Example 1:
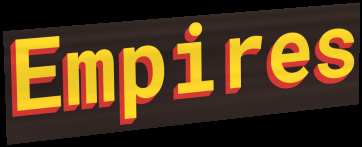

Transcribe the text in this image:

Empires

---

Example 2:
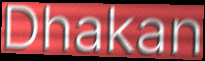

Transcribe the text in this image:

Dhakan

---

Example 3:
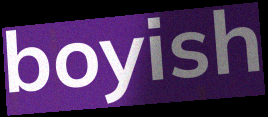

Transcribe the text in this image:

boyish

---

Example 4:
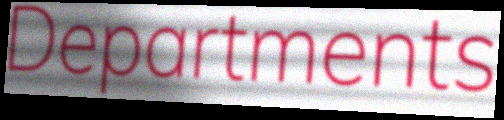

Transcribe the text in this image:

Departments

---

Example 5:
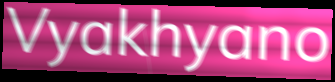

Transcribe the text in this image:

Vyakhyano